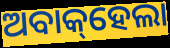
ଅବାକ୍‌ହେଲା